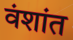
वंशांत